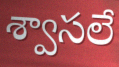
శ్వాసలే